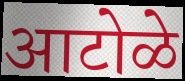
आटोळे